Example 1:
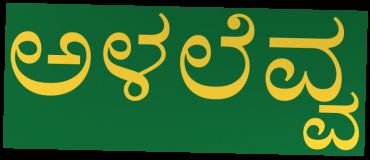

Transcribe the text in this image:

ಅಳಲೆವ್ವ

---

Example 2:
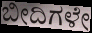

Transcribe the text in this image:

ಬೀದಿಗಳೇ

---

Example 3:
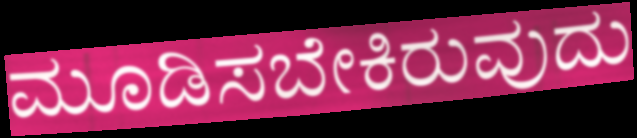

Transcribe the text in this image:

ಮೂಡಿಸಬೇಕಿರುವುದು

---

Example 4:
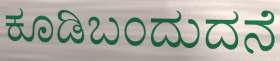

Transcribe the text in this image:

ಕೂಡಿಬಂದುದನೆ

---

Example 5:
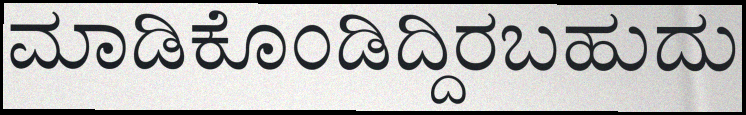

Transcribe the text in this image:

ಮಾಡಿಕೊಂಡಿದ್ದಿರಬಹುದು